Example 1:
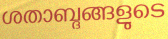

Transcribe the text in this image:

ശതാബ്ദങ്ങളുടെ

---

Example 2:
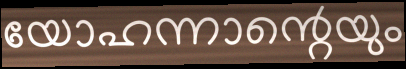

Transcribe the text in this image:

യോഹന്നാന്റെയും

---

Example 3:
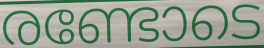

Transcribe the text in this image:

രണ്ടോടെ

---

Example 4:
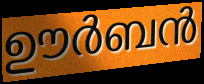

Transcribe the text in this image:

ഊർബൻ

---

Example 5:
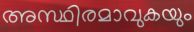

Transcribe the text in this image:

അസ്ഥിരമാവുകയും